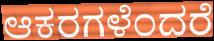
ಆಕರಗಳೆಂದರೆ